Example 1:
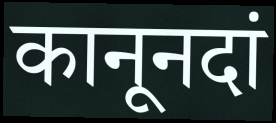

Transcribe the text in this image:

कानूनदां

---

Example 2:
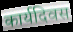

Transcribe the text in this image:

कार्यदिवस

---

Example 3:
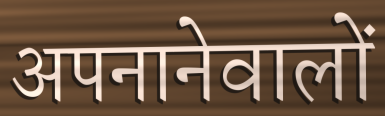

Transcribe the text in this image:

अपनानेवालों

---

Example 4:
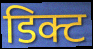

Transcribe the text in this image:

डिक्ट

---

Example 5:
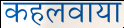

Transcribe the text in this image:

कहलवाया